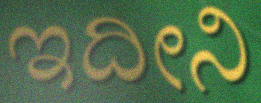
ಇದೀನಿ